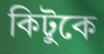
কিটুকে